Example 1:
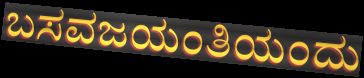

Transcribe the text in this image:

ಬಸವಜಯಂತಿಯಂದು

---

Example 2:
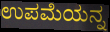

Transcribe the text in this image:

ಉಪಮೆಯನ್ನ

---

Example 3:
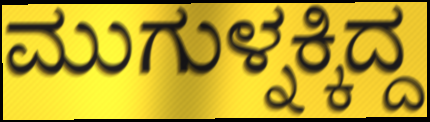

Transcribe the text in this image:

ಮುಗುಳ್ನಕ್ಕಿದ್ದ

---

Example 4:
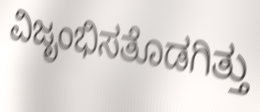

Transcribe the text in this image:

ವಿಜೃಂಭಿಸತೊಡಗಿತ್ತು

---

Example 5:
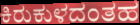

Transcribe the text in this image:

ಕಿರುಕುಳದಂತಹ